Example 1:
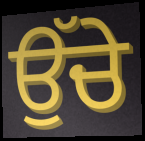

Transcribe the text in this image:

ਉੱਚੇ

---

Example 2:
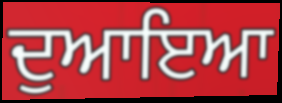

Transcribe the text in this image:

ਦੁਆਇਆ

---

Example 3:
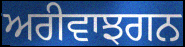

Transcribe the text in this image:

ਅਰੀਵਾਝਗਨ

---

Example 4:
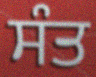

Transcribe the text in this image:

ਸੰਤ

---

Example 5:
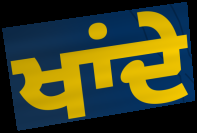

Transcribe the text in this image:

ਖਾਂਦੇ